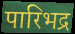
पारिभद्र